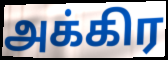
அக்கிர